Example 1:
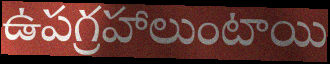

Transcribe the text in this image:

ఉపగ్రహాలుంటాయి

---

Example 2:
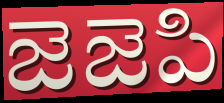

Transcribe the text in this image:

జెజెపి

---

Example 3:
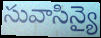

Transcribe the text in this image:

సువాసిన్యై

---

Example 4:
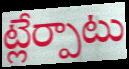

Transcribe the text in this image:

ట్లేర్పాటు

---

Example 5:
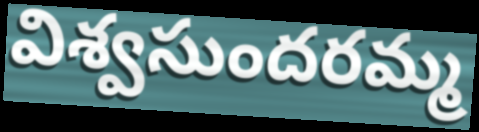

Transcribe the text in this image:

విశ్వసుందరమ్మ